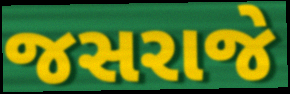
જસરાજે